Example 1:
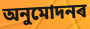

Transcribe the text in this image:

অনুমোদনৰ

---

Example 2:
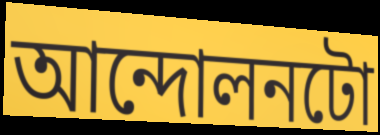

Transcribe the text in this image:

আন্দোলনটো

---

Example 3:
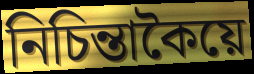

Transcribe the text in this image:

নিচিন্তাকৈয়ে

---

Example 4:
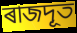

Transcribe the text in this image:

ৰাজদূত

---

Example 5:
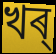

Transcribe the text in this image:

খৰ্